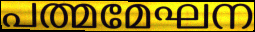
പത്മമേഘന